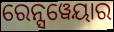
ରେନ୍ସୱେୟାର